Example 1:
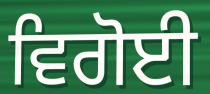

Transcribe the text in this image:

ਵਿਗੋਈ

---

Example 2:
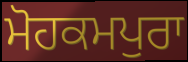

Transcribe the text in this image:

ਮੋਹਕਮਪੁਰਾ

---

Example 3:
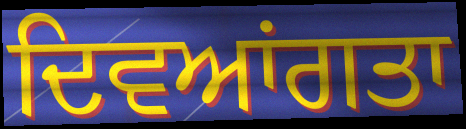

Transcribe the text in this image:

ਦਿਵਆਂਗਤਾ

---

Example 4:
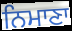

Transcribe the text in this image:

ਨਿਮਾਣਾ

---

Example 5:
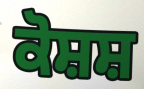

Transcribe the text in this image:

ਕੋਸ਼ਸ਼